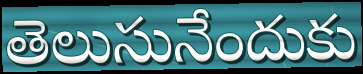
తెలుసునేందుకు